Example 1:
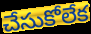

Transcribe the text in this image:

చేసుకోలేక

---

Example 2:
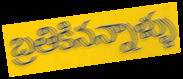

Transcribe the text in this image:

బ్రతికినన్నాళ్ళు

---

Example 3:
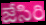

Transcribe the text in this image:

జేసిరి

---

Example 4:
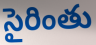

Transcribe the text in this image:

సైరింతు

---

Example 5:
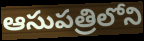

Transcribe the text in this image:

ఆసుపత్రిలోని